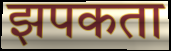
झपकता